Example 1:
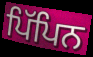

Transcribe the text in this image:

ਪਿੱਪਿਨ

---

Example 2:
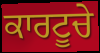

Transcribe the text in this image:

ਕਾਰਟੂਚੇ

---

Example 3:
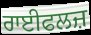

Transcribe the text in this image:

ਰਾਈਫਲਜ਼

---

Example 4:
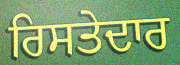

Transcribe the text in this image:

ਰਿਸਤੇਦਾਰ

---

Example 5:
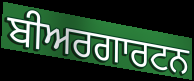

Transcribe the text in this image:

ਬੀਅਰਗਾਰਟਨ